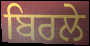
ਬਿਰਲੇ